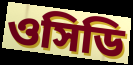
ওসিডি